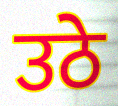
उठे